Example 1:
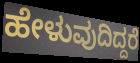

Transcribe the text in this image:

ಹೇಳುವುದಿದ್ದರೆ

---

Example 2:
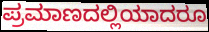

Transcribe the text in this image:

ಪ್ರಮಾಣದಲ್ಲಿಯಾದರೂ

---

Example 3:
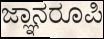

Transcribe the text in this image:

ಜ್ಞಾನರೂಪಿ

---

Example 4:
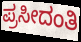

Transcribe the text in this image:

ಪ್ರಸೀದಂತಿ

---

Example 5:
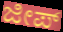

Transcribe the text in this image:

ಜೀಪ್